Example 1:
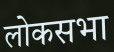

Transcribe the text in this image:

लोकसभा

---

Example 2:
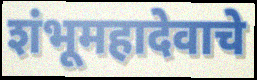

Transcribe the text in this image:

शंभूमहादेवाचे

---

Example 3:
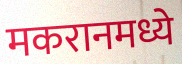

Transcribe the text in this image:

मकरानमध्ये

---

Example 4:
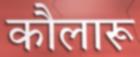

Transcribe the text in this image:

कौलारू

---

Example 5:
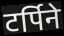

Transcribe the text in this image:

टर्पिने